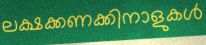
ലക്ഷക്കണക്കിനാളുകൾ